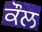
ਕੌਲ